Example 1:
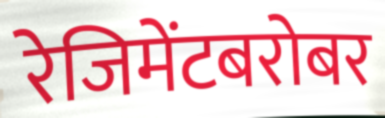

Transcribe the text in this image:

रेजिमेंटबरोबर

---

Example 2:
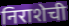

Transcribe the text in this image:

निराशेची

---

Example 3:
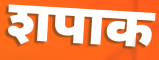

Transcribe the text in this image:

शपाक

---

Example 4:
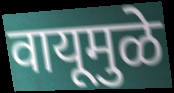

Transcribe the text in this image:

वायूमुळे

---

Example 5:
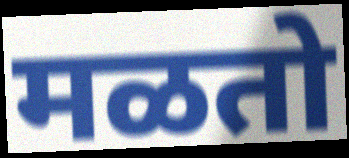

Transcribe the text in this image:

मळतो